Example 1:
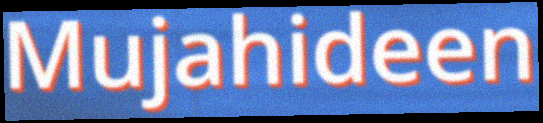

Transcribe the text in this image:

Mujahideen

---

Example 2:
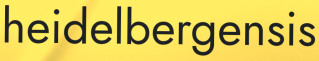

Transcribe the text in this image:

heidelbergensis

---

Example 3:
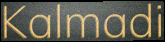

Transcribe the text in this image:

Kalmadi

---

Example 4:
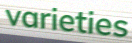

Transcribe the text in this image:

varieties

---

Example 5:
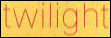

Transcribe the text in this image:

twilight